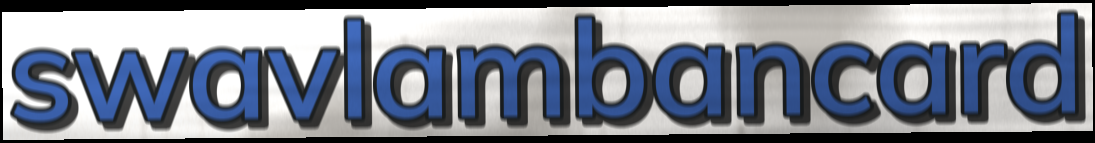
swavlambancard